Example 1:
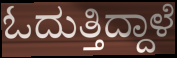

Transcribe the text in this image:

ಓದುತ್ತಿದ್ದಾಳೆ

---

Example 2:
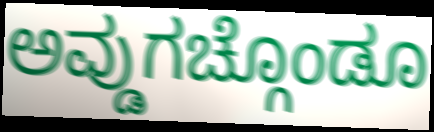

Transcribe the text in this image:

ಅವ್ಡುಗಚ್ಗೊಂಡೂ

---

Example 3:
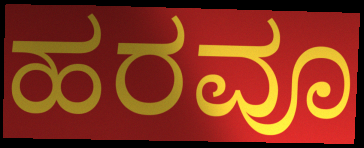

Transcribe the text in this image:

ಹರವೂ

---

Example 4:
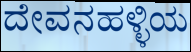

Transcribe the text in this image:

ದೇವನಹಳ್ಳಿಯ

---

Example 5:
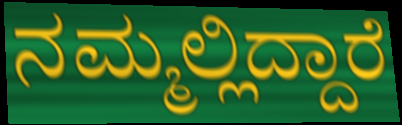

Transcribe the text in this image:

ನಮ್ಮಲ್ಲಿದ್ದಾರೆ